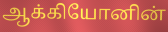
ஆக்கியோனின்